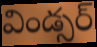
విండ్సర్